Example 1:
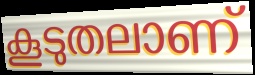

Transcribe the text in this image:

കൂടുതലാണ്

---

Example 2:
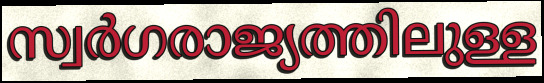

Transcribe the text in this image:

സ്വർഗരാജ്യത്തിലുള്ള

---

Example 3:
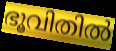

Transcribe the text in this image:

ഭൂവിതിൽ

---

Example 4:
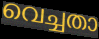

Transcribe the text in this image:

വെച്ചതാ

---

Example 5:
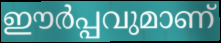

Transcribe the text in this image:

ഈർപ്പവുമാണ്